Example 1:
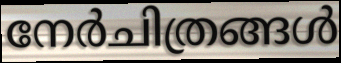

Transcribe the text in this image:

നേർചിത്രങ്ങൾ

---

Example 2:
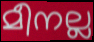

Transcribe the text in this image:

മീനല്ല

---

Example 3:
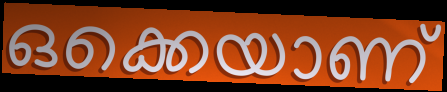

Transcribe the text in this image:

ഒക്കെയാണ്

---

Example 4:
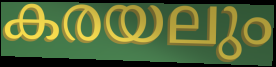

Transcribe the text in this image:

കരയലും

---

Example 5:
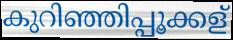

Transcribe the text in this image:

കുറിഞ്ഞിപ്പൂക്കള്